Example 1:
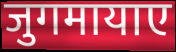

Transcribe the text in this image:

जुगमायाए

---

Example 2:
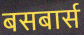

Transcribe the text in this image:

बसबार्स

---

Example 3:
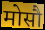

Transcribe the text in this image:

मोसौ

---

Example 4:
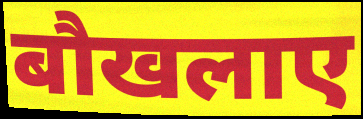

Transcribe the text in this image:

बौखलाए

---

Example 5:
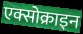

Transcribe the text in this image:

एक्सोक्राइन